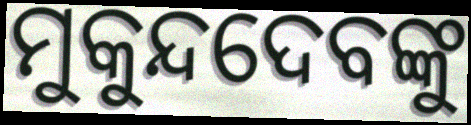
ମୁକୁନ୍ଦଦେବଙ୍କୁ